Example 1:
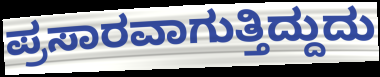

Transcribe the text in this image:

ಪ್ರಸಾರವಾಗುತ್ತಿದ್ದುದು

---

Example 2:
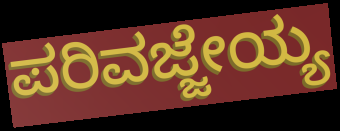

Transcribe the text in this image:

ಪರಿವಜ್ಜೇಯ್ಯ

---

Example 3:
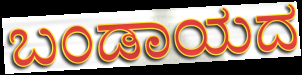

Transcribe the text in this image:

ಬಂಡಾಯದ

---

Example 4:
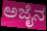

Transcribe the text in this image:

ಅಜೈನ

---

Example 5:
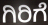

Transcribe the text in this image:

ಗಿರಿಗೆ